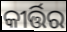
କୀର୍ତ୍ତିର